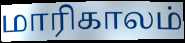
மாரிகாலம்